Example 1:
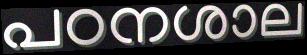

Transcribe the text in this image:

പഠനശാല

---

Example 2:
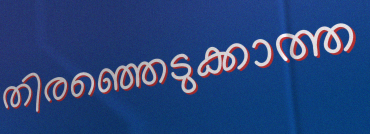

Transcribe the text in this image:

തിരഞ്ഞെടുക്കാത്ത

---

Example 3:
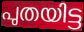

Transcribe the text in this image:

പുതയിട്ട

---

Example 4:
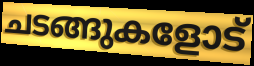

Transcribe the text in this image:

ചടങ്ങുകളോട്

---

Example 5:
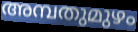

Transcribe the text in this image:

അമ്പതുമുഴം